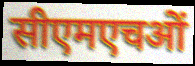
सीएमएचओं